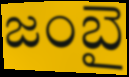
జంబై